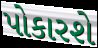
પોકારશે